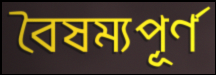
বৈষম্যপূর্ণ